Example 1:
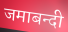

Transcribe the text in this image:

जमाबन्दी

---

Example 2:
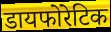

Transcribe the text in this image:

डायफोरेटिक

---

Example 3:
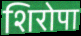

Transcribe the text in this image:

शिरोपा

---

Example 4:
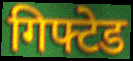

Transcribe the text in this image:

गिफ्टेड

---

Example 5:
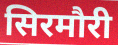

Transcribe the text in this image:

सिरमौरी